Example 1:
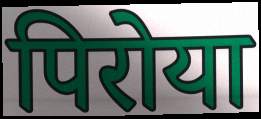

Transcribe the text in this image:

पिरोया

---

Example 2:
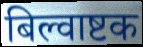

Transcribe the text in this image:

बिल्वाष्टक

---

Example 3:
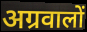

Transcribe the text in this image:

अग्रवालों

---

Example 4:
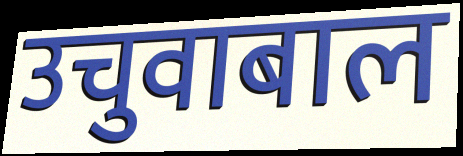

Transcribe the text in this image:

उचुवाबाल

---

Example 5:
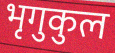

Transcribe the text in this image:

भृगुकुल